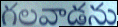
గలవాడను